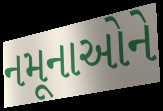
નમૂનાઓને